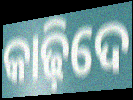
କାଢ଼ିଦେ